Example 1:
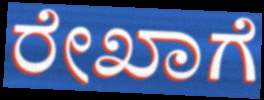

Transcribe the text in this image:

ರೇಖಾಗೆ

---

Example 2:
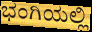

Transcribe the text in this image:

ಭಂಗಿಯಲ್ಲಿ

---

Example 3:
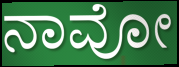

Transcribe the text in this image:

ನಾವೋ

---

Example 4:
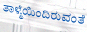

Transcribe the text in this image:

ತಾಳ್ಮೆಯಿಂದಿರುವಂತೆ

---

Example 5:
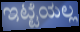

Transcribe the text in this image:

ಇಟ್ಟೆಯಲ್ಲ